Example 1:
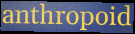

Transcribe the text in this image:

anthropoid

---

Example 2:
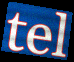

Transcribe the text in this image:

tel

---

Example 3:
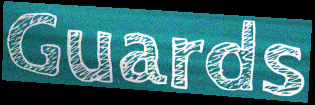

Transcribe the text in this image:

Guards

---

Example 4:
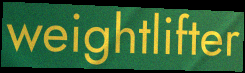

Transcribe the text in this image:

weightlifter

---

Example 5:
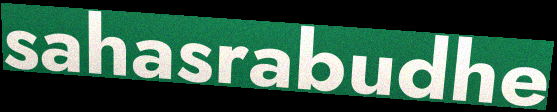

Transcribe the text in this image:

sahasrabudhe